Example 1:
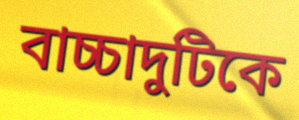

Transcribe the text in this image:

বাচ্চাদুটিকে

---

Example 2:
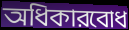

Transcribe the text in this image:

অধিকারবোধ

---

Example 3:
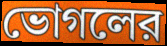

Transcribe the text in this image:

ভোগলের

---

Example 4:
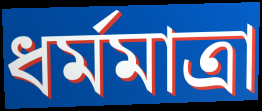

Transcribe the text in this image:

ধর্মমাত্রা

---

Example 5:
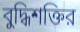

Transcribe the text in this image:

বুদ্ধিশক্তির